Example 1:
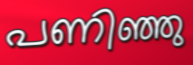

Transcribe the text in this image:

പണിഞ്ഞു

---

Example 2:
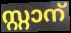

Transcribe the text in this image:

സ്റ്റാന്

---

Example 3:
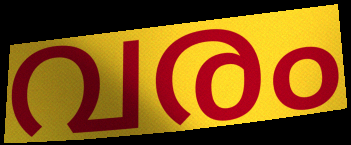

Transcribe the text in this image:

വരം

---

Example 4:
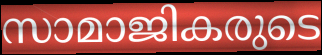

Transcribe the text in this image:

സാമാജികരുടെ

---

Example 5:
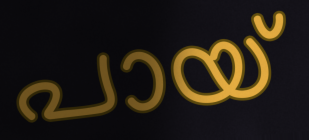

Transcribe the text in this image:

പായ്